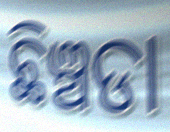
ଛିଞ୍ଚଡା